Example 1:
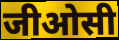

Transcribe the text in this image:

जीओसी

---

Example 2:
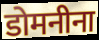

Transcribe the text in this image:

डोमनीना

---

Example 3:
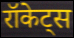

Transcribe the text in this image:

रॉकेट्स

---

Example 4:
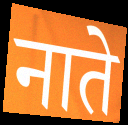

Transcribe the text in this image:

नाते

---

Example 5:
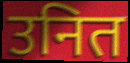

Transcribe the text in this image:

उनित